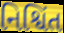
નિશ્વિંત